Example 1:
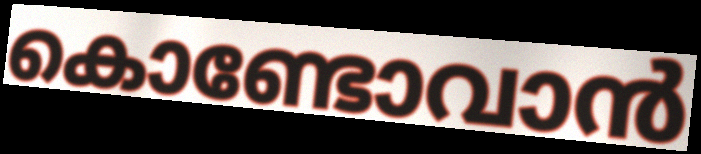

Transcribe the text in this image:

കൊണ്ടോവാൻ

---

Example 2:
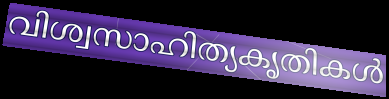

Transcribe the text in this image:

വിശ്വസാഹിത്യകൃതികൾ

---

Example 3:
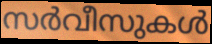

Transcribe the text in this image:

സർവീസുകൾ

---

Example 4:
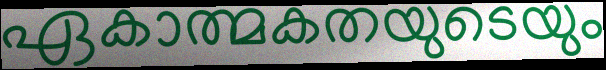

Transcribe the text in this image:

ഏകാത്മകതയുടെയും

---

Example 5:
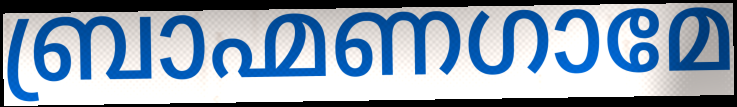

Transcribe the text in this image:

ബ്രാഹ്മണഗാമേ